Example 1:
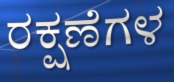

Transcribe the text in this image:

ರಕ್ಷಣೆಗಳ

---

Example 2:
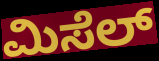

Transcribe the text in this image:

ಮಿಸೆಲ್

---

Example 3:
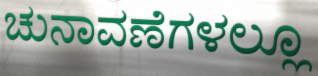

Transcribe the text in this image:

ಚುನಾವಣೆಗಳಲ್ಲೂ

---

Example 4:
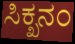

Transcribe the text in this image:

ಸಿಕ್ಖನಂ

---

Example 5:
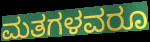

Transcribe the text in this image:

ಮತಗಳವರೂ